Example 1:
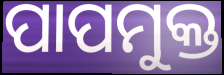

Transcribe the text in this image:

ପାପମୁକ୍ତ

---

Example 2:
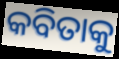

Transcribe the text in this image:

କବିତାକୁ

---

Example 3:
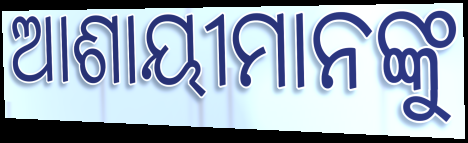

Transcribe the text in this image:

ଆଶାୟୀମାନଙ୍କୁ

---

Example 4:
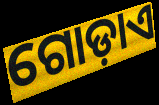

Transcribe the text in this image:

ଗୋଡ଼ାଏ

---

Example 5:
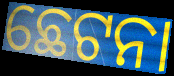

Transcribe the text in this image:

ଛେଟନା